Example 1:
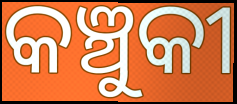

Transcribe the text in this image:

କଞ୍ଚୁକୀ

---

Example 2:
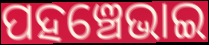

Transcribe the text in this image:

ପହଞ୍ଚେଭାଇ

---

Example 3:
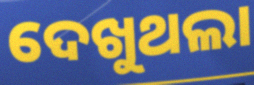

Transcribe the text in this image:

ଦେଖୁଥଲା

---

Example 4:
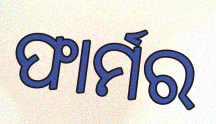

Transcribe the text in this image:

ଫାର୍ମର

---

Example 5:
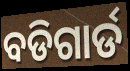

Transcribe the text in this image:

ବଡିଗାର୍ଡ